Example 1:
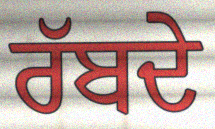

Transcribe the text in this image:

ਰੱਬਦੇ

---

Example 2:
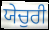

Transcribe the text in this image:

ਯੇਚੁਰੀ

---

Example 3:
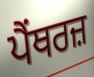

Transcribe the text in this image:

ਪੈਂਥਰਜ਼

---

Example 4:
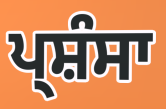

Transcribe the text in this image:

ਪ੍ਸ਼ੰਸਾ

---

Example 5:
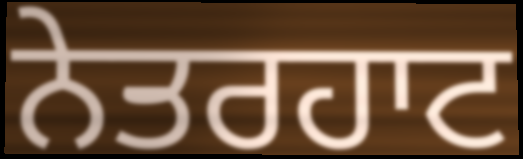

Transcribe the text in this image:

ਨੇਤਰਹਾਟ